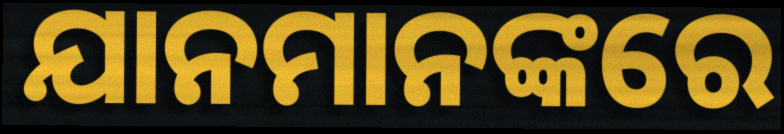
ଯାନମାନଙ୍କରେ